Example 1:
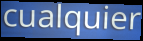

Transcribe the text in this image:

cualquier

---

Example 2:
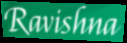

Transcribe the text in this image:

Ravishna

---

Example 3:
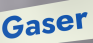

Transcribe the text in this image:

Gaser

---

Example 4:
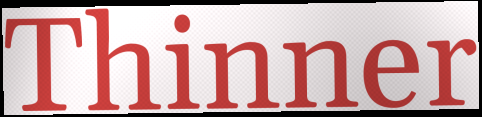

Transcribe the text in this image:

Thinner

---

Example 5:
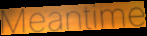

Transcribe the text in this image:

Meantime